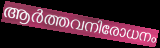
ആർത്തവനിരോധനം